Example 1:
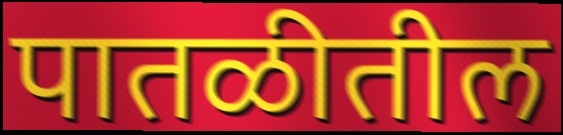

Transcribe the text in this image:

पातळीतील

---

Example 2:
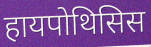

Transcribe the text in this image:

हायपोथिसिस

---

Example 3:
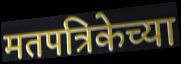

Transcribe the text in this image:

मतपत्रिकेच्या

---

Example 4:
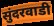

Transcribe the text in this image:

सुंदरवाडी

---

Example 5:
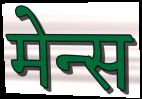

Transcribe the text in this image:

मेन्स